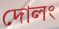
দোলং